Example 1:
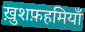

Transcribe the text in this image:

ख़ुशफ़हमियाँ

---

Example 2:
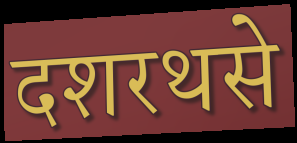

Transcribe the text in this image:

दशरथसे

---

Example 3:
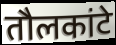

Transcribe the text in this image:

तौलकांटे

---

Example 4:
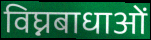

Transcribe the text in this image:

विघ्नबाधाओं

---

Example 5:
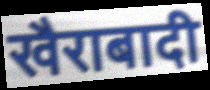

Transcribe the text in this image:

खैराबादी